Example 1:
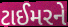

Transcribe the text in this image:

ટાઈમરને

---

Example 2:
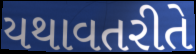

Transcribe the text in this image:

યથાવતરીતે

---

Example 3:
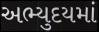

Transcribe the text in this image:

અભ્યુદયમાં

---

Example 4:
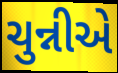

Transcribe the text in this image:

ચુન્નીએ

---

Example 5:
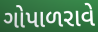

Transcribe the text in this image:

ગોપાળરાવે